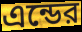
এন্ডের